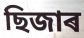
ছিজাৰ